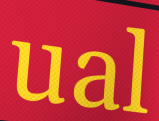
ual